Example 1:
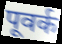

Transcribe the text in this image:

पूवर्क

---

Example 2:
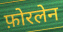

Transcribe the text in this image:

फ़ोरलेन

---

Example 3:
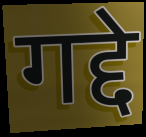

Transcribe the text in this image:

गद्दे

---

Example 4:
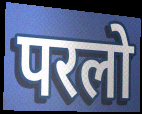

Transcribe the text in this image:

परलो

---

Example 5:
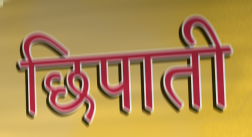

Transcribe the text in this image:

छिपाती